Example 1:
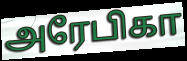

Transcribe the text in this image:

அரேபிகா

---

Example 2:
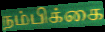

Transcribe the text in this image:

நம்பிக்கை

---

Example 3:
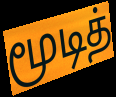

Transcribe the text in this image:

மூடித்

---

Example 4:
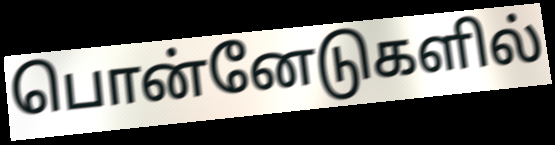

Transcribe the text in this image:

பொன்னேடுகளில்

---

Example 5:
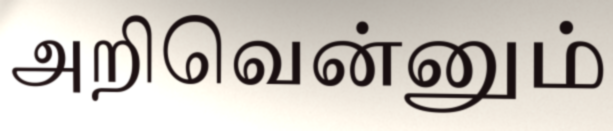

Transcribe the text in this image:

அறிவென்னும்